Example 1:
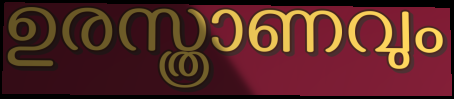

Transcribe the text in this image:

ഉരസ്ത്രാണവും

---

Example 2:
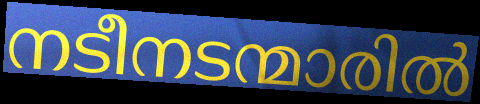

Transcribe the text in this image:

നടീനടന്മാരിൽ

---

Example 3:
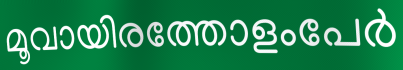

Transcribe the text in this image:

മൂവായിരത്തോളംപേർ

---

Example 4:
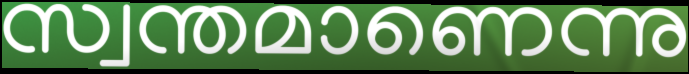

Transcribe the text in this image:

സ്വന്തമാണെന്നു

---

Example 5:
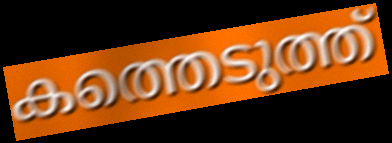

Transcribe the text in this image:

കത്തെടുത്ത്